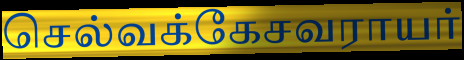
செல்வக்கேசவராயர்